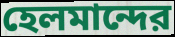
হেলমান্দের